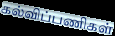
கல்விப்பணிகள்